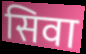
सिवा